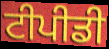
ਟੀਪੀਡੀ